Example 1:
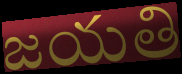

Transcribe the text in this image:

జయతి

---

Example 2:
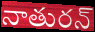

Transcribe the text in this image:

నాతురన్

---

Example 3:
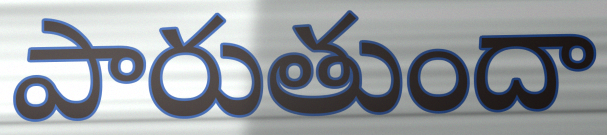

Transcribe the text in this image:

పారుతుందా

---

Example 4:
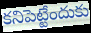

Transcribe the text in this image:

కనిపెట్టేందుకు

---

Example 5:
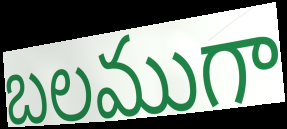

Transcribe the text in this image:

బలముగా